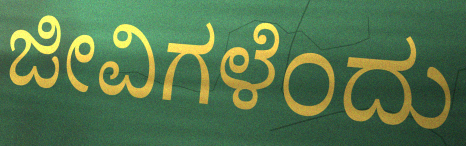
ಜೀವಿಗಳೆಂದು